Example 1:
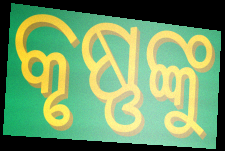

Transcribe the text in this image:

କୃଷ୍ଣଙ୍କୁ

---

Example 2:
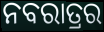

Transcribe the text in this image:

ନବରାତ୍ରର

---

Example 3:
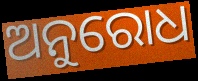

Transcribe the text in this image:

ଅନୁରୋଧ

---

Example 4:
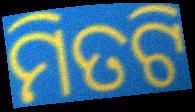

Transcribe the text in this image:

ମିତଟି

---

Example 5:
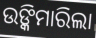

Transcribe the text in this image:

ଉଙ୍କିମାରିଲା